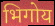
भिगोय